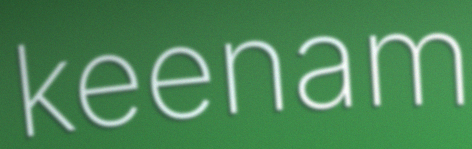
keenam